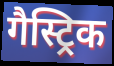
गैस्ट्रिक